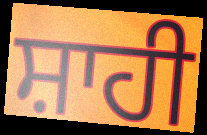
ਸ਼ਾਹੀ